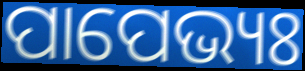
ପାପେଭ୍ୟଃ